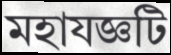
মহাযজ্ঞটি